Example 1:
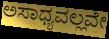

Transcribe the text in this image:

ಅಸಾಧ್ಯವಲ್ಲವೇ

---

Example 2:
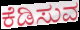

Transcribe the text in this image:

ಕೆಡಿಸುವ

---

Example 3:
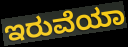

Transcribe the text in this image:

ಇರುವೆಯಾ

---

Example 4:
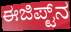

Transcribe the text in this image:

ಈಜಿಪ್ಟ್‌ನ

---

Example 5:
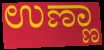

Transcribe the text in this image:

ಉಣ್ಣಾ